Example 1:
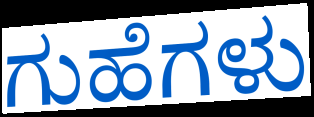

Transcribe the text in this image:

ಗುಹೆಗಳು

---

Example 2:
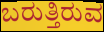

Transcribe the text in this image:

ಬರುತ್ತಿರುವ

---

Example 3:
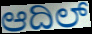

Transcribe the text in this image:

ಆದಿಲ್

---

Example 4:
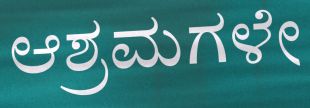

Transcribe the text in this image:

ಆಶ್ರಮಗಳೇ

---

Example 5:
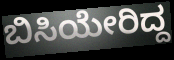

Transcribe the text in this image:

ಬಿಸಿಯೇರಿದ್ದ